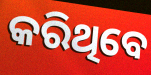
କରିଥିବେ